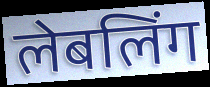
लेबलिंग